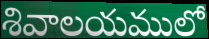
శివాలయములో